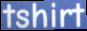
tshirt